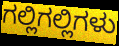
ಗಲ್ಲಿಗಲ್ಲಿಗಳು